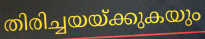
തിരിച്ചയയ്ക്കുകയും